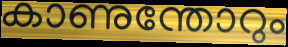
കാണുന്തോറും